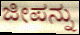
ಜೀಪನ್ನು